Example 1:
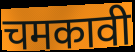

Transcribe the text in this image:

चमकावी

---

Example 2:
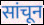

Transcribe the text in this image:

सांचून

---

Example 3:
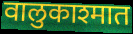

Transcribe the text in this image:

वालुकाश्मात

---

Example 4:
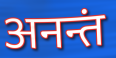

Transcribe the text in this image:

अनन्तं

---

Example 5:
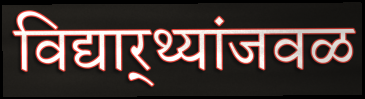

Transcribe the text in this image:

विद्यार्थ्यांजवळ